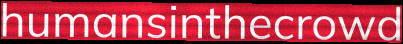
humansinthecrowd